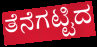
ತೆನೆಗಟ್ಟಿದ